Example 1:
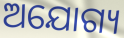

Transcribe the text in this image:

ଅଯୋଗ୍ୟ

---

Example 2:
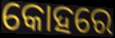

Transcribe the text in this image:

କୋହରେ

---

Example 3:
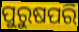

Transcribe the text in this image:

ପୁରୁଷପରି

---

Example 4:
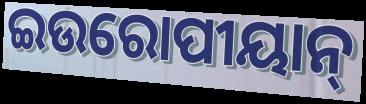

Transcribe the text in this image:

ଇଉରୋପୀୟାନ୍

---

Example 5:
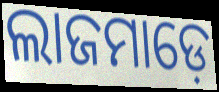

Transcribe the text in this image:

ଲାଜମାଡ଼େ